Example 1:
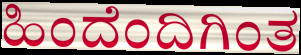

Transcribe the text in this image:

ಹಿಂದೆಂದಿಗಿಂತ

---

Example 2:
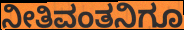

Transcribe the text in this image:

ನೀತಿವಂತನಿಗೂ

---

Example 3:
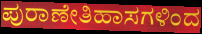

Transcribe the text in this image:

ಪುರಾಣೇತಿಹಾಸಗಳಿಂದ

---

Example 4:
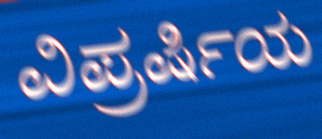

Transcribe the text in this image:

ವಿಪ್ರರ್ಷಿಯ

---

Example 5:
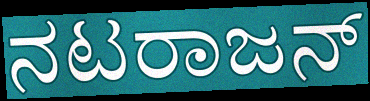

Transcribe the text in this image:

ನಟರಾಜನ್